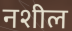
नशील